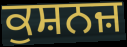
ਕੁਸ਼ਨਜ਼